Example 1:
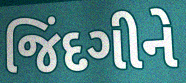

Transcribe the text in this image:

જિંદગીને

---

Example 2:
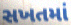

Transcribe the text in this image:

સખતમાં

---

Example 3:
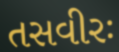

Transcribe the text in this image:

તસવીરઃ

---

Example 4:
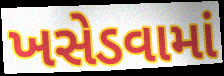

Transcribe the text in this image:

ખસેડવામાં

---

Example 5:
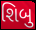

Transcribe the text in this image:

શિબુ